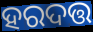
ହରଦତ୍ତ